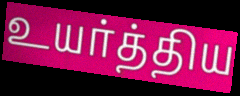
உயர்த்திய